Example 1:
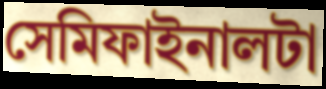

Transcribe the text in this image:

সেমিফাইনালটা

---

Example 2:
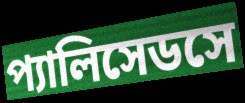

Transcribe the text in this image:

প্যালিসেডসে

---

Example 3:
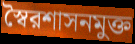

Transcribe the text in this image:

স্বৈরশাসনমুক্ত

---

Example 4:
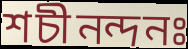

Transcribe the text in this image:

শচীনন্দনঃ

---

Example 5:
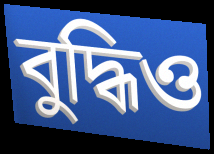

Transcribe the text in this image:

বুদ্ধিও